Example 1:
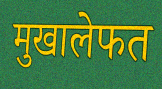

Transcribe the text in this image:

मुखालेफत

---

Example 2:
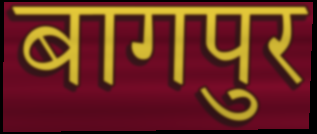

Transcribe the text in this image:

बागपुर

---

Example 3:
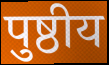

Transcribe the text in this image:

पुष्ठीय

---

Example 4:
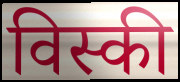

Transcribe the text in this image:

विस्की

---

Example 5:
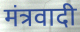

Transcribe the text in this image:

मंत्रवादी